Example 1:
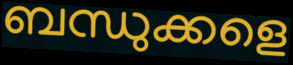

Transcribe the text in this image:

ബന്ധുക്കളെ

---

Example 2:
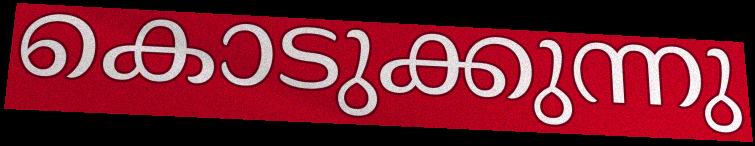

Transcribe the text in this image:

കൊടുക്കുന്നു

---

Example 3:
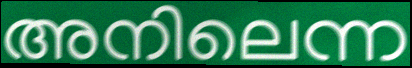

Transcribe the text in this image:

അനിലെന്ന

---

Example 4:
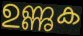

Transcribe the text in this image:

ഉണ്ണുക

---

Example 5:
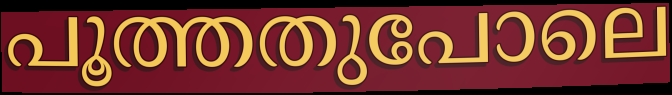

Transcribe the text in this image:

പൂത്തതുപോലെ